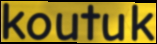
koutuk